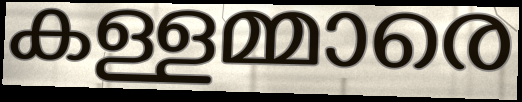
കള്ളമ്മാരെ